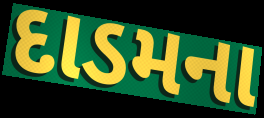
દાડમના